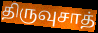
திருவுசாத்